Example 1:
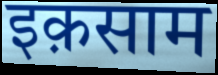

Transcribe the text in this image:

इक़साम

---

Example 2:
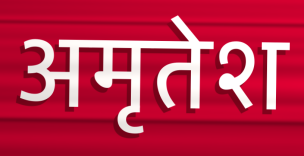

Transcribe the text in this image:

अमृतेश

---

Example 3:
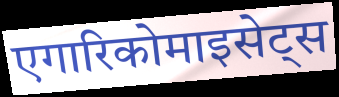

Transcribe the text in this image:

एगारिकोमाइसेट्स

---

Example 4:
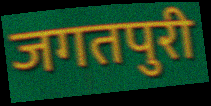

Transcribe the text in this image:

जगतपुरी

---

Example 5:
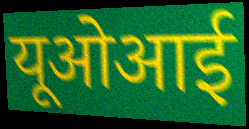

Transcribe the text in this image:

यूओआई